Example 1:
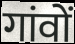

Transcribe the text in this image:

गांवों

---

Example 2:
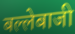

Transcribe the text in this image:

बल्लेबाजी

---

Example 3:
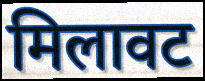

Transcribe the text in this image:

मिलावट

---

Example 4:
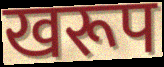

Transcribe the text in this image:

खरूप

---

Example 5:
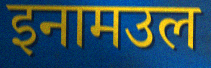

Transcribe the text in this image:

इनामउल